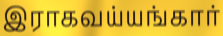
இராகவய்யங்கார்